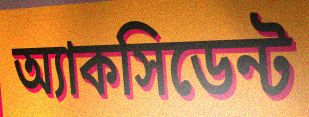
অ্যাকসিডেন্ট